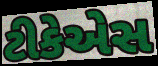
ટીકેએસ